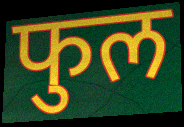
फुल